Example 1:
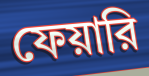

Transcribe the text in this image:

ফেয়ারি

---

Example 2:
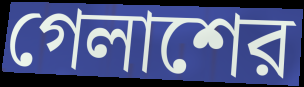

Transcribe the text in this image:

গেলাশের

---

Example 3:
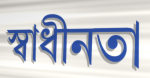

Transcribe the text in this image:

স্বাধীনতা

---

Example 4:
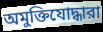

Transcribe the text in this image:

অমুক্তিযোদ্ধারা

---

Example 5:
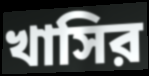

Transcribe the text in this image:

খাসির